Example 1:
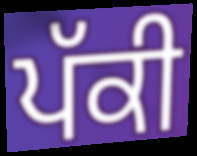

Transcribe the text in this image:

ਪੱਕੀ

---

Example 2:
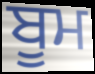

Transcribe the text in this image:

ਬੂਮ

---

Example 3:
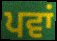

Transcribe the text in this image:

ਪਵਾਂ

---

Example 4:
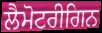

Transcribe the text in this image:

ਲੈਮੋਟਰੀਗਿਨ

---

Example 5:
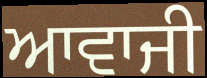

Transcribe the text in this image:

ਆਵਾਜੀ